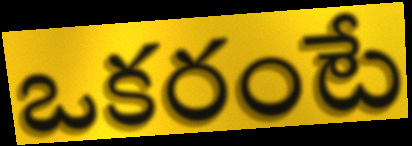
ఒకరంటే